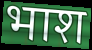
भाश